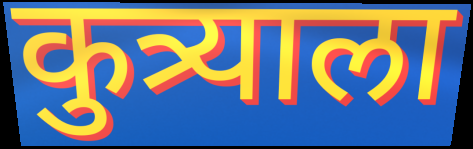
कुत्र्याला